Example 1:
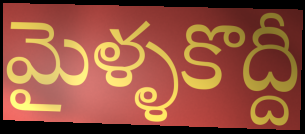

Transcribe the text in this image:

మైళ్ళకొద్దీ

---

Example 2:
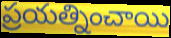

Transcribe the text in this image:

ప్రయత్నించాయి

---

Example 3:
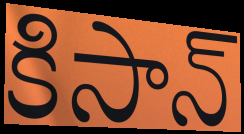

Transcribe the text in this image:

కిసాన్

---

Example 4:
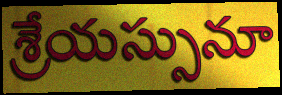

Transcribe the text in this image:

శ్రేయస్సునూ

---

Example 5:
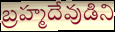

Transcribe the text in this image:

బ్రహ్మదేవుడిని